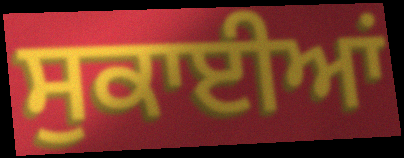
ਸੁਕਾਈਆਂ